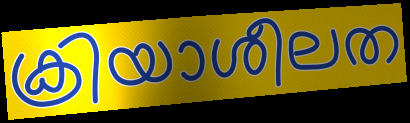
ക്രിയാശീലത